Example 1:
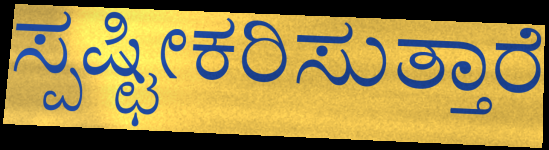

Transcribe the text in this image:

ಸ್ಪಷ್ಟೀಕರಿಸುತ್ತಾರೆ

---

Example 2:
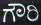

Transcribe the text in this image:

ಗೌರಿ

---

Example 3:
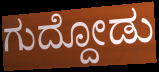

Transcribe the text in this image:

ಗುದ್ದೋಡು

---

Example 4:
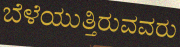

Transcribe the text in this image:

ಬೆಳೆಯುತ್ತಿರುವವರು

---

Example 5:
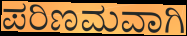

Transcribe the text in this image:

ಪರಿಣಮವಾಗಿ